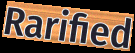
Rarified